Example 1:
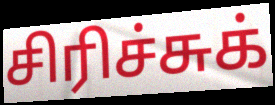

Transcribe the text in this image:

சிரிச்சுக்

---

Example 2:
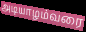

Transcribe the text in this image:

அடியாழம்வரை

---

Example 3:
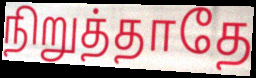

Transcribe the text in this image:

நிறுத்தாதே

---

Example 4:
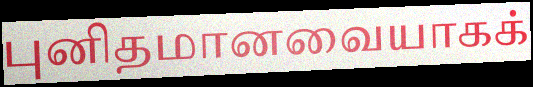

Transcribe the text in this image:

புனிதமானவையாகக்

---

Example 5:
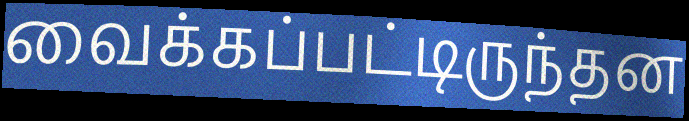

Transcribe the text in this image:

வைக்கப்பட்டிருந்தன